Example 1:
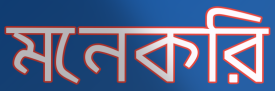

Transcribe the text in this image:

মনেকরি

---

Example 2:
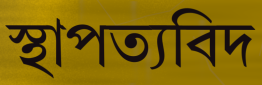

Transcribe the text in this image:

স্থাপত্যবিদ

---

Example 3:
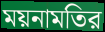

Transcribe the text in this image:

ময়নামতির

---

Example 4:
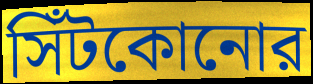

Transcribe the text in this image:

সিঁটকোনোর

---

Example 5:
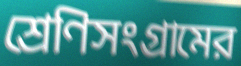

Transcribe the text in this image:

শ্রেণিসংগ্রামের